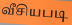
வீசியபடி